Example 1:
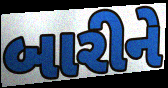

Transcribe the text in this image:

બારીને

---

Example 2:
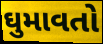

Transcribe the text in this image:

ઘુમાવતો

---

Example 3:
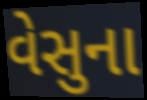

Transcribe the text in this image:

વેસુના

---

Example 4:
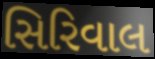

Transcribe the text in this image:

સિરિવાલ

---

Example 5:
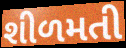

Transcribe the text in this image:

શીળમતી